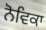
ਨੋਵਿਕਾ